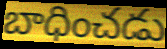
బాధించడు